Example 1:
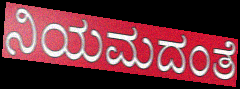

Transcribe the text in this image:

ನಿಯಮದಂತೆ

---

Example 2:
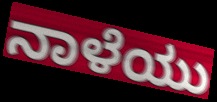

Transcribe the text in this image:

ನಾಳೆಯು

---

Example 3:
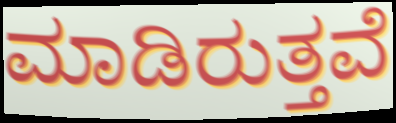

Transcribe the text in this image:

ಮಾಡಿರುತ್ತವೆ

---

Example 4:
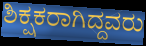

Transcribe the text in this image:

ಶಿಕ್ಷಕರಾಗಿದ್ದವರು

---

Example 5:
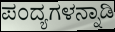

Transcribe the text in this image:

ಪಂದ್ಯಗಳನ್ನಾಡಿ